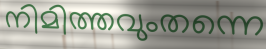
നിമിത്തവുംതന്നെ